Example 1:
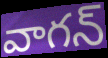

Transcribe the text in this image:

వాగన్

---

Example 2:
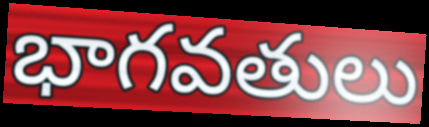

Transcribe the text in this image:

భాగవతులు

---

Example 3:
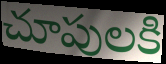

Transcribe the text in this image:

చూపులకి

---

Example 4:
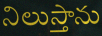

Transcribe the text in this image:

నిలుస్తాను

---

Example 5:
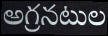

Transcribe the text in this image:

అగ్రనటుల